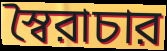
স্বৈরাচার